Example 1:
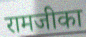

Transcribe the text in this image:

रामजीका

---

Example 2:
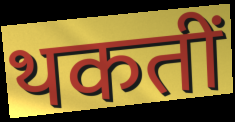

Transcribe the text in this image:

थकतीं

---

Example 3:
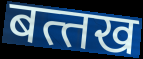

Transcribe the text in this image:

बत्‍तख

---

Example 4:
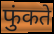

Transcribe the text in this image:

फुंकते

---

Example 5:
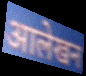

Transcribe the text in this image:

आलेखन